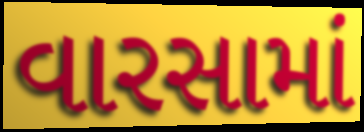
વારસામાં